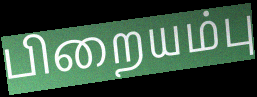
பிறையம்பு